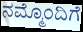
ನಮ್ಮೊಂದಿಗೆ